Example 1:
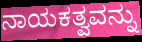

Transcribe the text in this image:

ನಾಯಕತ್ವವನ್ನು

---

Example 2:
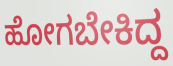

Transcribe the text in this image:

ಹೋಗಬೇಕಿದ್ದ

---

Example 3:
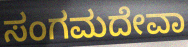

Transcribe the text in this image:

ಸಂಗಮದೇವಾ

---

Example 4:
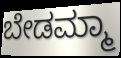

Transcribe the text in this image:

ಬೇಡಮ್ಮಾ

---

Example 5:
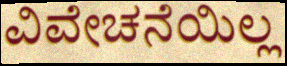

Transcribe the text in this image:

ವಿವೇಚನೆಯಿಲ್ಲ